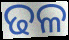
ଢଳ